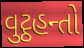
વુટ્ઠહન્તો